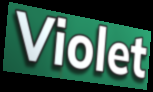
Violet